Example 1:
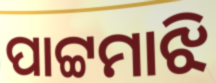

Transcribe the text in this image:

ପାଟ୍ଟମାଝି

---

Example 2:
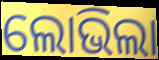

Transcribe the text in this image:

ଲୋଭିଲା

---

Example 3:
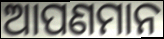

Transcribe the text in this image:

ଆପଣମାନ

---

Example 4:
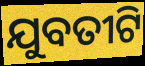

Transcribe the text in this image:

ଯୁବତୀଟି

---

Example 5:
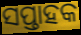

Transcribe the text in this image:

ସପ୍ତାହକ